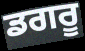
ਡਗਰੂ